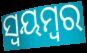
ସ୍ଵୟମ୍ବର